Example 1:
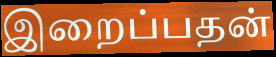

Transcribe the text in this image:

இறைப்பதன்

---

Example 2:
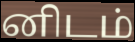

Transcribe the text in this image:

னிடம்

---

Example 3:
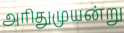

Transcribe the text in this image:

அரிதுமுயன்று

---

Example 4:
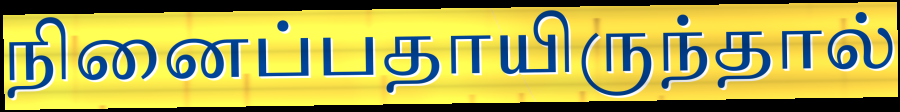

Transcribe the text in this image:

நினைப்பதாயிருந்தால்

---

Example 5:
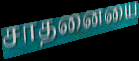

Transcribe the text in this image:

சாதனையை